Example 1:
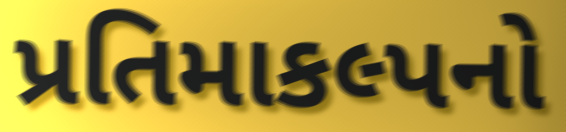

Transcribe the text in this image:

પ્રતિમાકલ્પનો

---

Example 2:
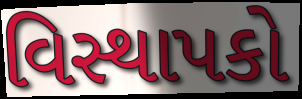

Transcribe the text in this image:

વિસ્થાપકો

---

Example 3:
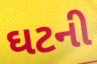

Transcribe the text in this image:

ઘટની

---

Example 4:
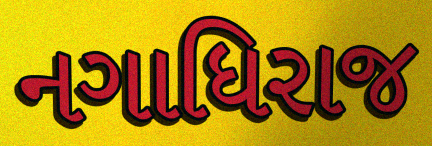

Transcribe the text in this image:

નગાધિરાજ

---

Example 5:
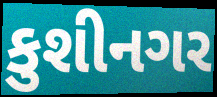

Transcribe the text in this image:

કુશીનગર